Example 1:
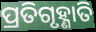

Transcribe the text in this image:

ପ୍ରତିଗୃହ୍ଣାତି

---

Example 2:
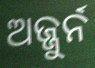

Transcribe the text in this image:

ଅଜ୍ଜୁର୍ନ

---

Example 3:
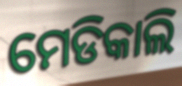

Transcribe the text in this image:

ମେଡିକାଲି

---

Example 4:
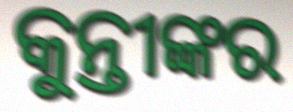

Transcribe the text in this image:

କୁନ୍ତୀଙ୍କର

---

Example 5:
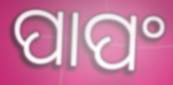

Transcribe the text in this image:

ପାପଂ